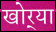
खोर्या